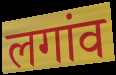
लगांव